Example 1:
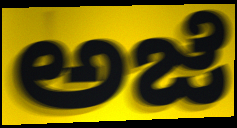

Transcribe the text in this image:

ಅಜೆ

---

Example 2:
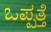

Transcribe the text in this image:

ಒಪ್ಪತ್ತೆ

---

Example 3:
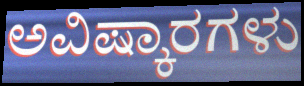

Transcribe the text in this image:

ಅವಿಷ್ಕಾರಗಳು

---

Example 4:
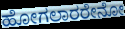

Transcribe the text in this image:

ಹೋಗಲಾರರೇನೋ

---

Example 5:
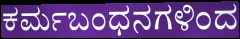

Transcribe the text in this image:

ಕರ್ಮಬಂಧನಗಳಿಂದ